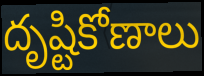
దృష్టికోణాలు